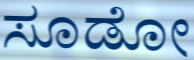
ಸೂಡೋ